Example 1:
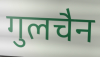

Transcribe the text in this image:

गुलचैन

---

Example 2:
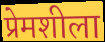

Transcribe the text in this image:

प्रेमशीला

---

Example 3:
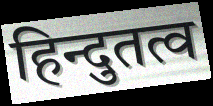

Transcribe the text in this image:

हिन्दुतत्व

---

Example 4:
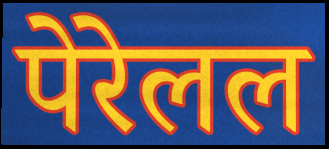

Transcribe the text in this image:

पेरेलल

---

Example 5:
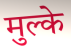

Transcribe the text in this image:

मुल्के